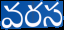
వరస